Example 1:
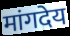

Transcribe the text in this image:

मांगदेय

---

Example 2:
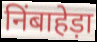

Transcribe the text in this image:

निंबाहेड़ा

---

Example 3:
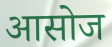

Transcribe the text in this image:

आसोज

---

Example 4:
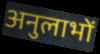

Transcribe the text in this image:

अनुलाभों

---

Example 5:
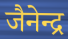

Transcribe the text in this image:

जैनेन्द्र